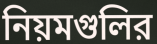
নিয়মগুলির